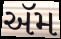
ઍમ